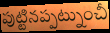
పుట్టినప్పట్నుంచీ